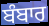
ਬੰਬਾਰ